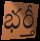
భర్తీ